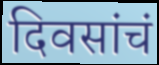
दिवसांचं